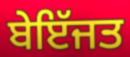
ਬੇਇੱਜਤ